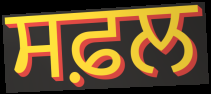
ਸਫ਼ਲ